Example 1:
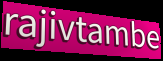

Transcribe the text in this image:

rajivtambe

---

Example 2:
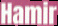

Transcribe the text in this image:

Hamir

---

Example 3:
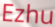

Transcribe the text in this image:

Ezhu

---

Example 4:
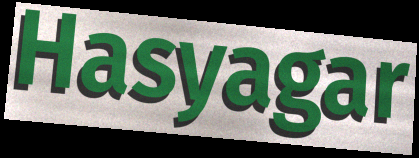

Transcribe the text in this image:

Hasyagar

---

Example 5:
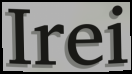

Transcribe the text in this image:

Irei